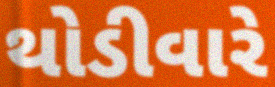
થોડીવારે